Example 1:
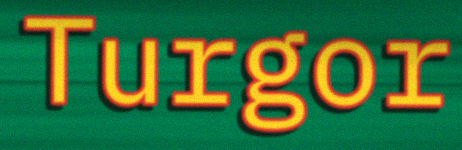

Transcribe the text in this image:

Turgor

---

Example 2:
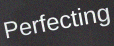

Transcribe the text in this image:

Perfecting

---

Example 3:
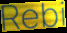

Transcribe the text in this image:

Rebi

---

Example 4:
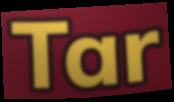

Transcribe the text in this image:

Tar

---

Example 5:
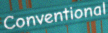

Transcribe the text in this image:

Conventional